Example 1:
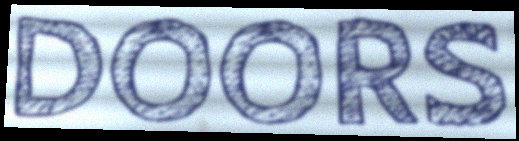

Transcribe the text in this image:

DOORS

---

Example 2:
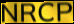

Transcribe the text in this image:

NRCP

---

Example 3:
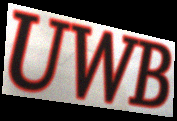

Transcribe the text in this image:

UWB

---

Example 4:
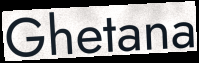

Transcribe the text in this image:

Ghetana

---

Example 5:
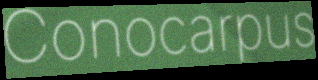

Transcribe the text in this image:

Conocarpus